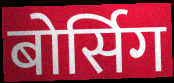
बोर्सिग